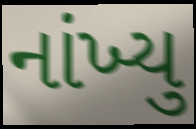
નાંખ્યુ